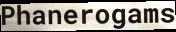
Phanerogams